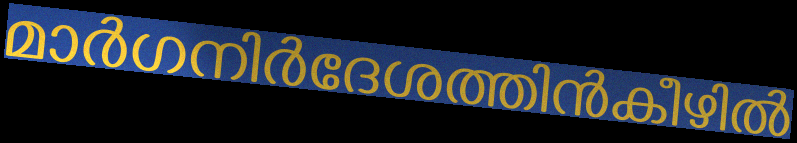
മാർഗനിർദേശത്തിൻകീഴിൽ